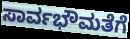
ಸಾರ್ವಭೌಮತೆಗೆ